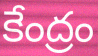
కేంద్రం